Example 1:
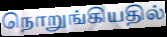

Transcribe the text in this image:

நொறுங்கியதில்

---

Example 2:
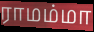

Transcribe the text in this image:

ராமம்மா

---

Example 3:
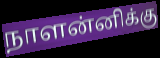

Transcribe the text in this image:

நாளன்னிக்கு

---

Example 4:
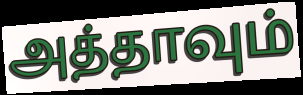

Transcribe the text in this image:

அத்தாவும்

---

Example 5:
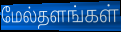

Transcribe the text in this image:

மேல்தளங்கள்